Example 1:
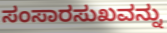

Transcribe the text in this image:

ಸಂಸಾರಸುಖವನ್ನು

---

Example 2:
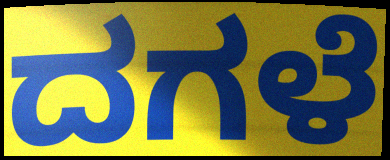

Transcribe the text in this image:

ದಗಳೆ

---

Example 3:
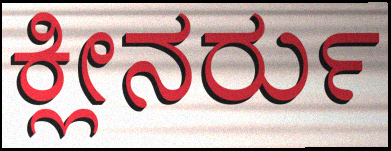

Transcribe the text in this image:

ಕ್ಲೀನರ್ರು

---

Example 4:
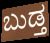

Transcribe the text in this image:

ಬುಡ್ತ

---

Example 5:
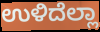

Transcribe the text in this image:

ಉಳಿದೆಲ್ಲಾ